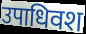
उपाधिवश